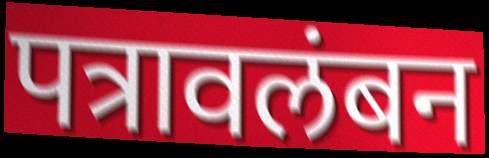
पत्रावलंबन